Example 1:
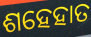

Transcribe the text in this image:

ଶହେହାତ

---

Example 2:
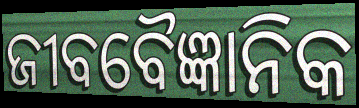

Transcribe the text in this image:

ଜୀବବୈଜ୍ଞାନିକ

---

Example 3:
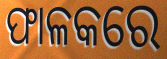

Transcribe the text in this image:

ଫାଳକରେ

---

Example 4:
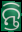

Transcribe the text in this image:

ନ୍ତି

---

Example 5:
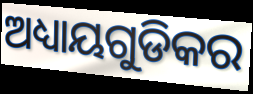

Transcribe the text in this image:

ଅଧ୍ୟାୟଗୁଡିକର